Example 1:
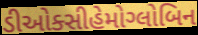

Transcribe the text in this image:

ડીઓક્સીહેમોગ્લોબિન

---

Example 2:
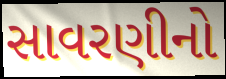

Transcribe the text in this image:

સાવરણીનો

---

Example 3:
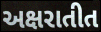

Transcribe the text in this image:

અક્ષરાતીત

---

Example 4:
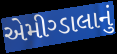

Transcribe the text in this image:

એમીગ્ડાલાનું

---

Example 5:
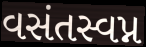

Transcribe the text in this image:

વસંતસ્વપ્ન